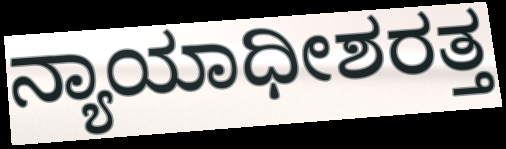
ನ್ಯಾಯಾಧೀಶರತ್ತ